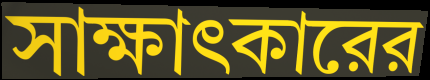
সাক্ষাৎকারের